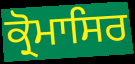
ਕ੍ਰੋਮਾਸਿਰ